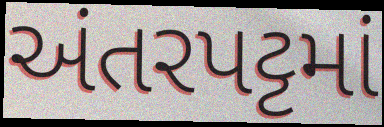
અંતરપટ્ટમાં